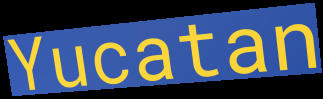
Yucatan